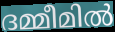
ദമ്മീമിൽ